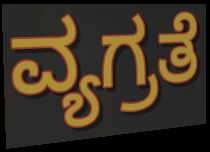
ವ್ಯಗ್ರತೆ